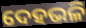
ଦେହଭଳି